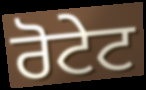
ਰੋਟੇਟ